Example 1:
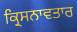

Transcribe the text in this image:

ਕ੍ਰਿਸਨਾਵਤਾਰ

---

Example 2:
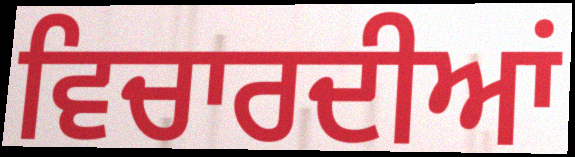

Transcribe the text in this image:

ਵਿਚਾਰਦੀਆਂ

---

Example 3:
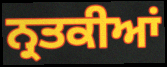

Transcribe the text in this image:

ਨ੍ਰਤਕੀਆਂ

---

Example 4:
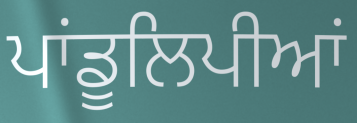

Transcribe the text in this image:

ਪਾਂਡੂਲਿਪੀਆਂ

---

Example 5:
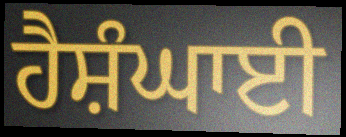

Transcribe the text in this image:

ਹੈਸ਼ੰਘਾਈ